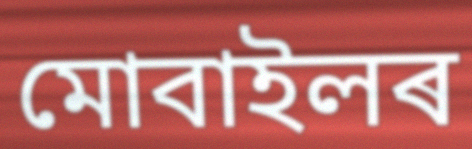
মোবাইলৰ